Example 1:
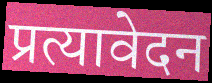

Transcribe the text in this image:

प्रत्यावेदन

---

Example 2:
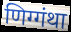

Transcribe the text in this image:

णिग्गंथा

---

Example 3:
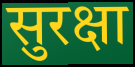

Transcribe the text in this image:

सुरक्षा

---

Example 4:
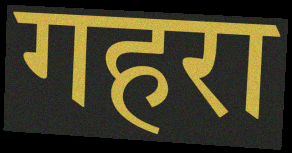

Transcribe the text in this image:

गहरा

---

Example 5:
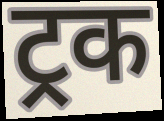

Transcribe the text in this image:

ट्रक